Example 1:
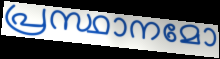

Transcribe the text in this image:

പ്രസ്ഥാനമോ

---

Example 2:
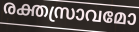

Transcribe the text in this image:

രക്തസ്രാവമോ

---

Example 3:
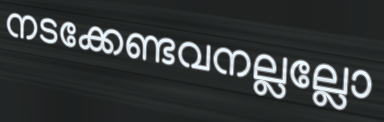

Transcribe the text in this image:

നടക്കേണ്ടവനല്ലല്ലോ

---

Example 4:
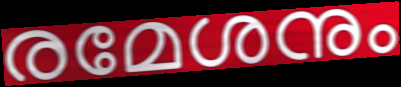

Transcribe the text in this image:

രമേശനും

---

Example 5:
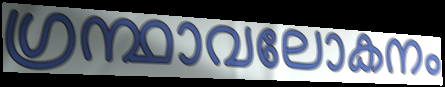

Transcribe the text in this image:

ഗ്രന്ഥാവലോകനം